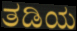
ತಡಿಯ